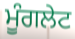
ਮੂੰਗਲੇਟ